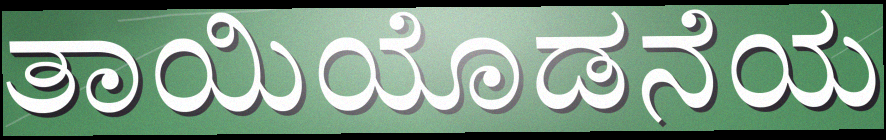
ತಾಯಿಯೊಡನೆಯ